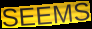
SEEMS